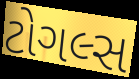
ટોગલ્સ